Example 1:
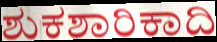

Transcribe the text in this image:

ಶುಕಶಾರಿಕಾದಿ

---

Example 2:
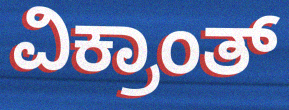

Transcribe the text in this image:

ವಿಕ್ರಾಂತ್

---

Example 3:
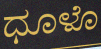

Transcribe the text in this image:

ಧೂಳೊ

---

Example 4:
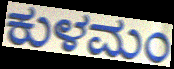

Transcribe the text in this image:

ಕುಳಮಂ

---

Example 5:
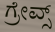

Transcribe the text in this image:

ಗ್ರೇವ್ಸ್